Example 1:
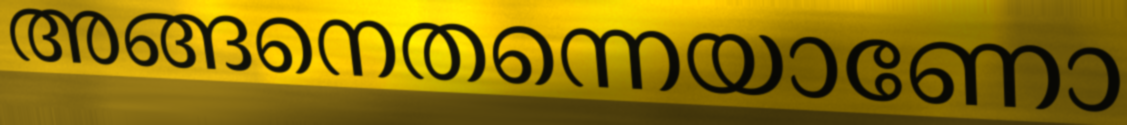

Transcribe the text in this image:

അങ്ങനെതന്നെയാണോ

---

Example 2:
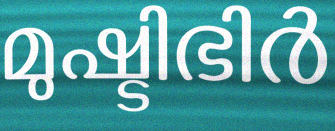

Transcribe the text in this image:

മുഷ്ടിഭിർ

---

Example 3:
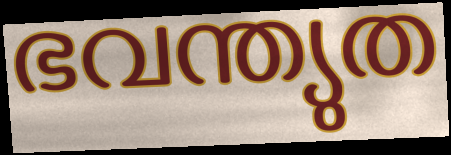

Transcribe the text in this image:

ഭവന്ത്യുത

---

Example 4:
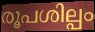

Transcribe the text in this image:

രൂപശില്പം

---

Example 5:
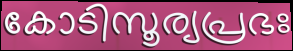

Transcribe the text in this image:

കോടിസൂര്യപ്രഭഃ